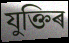
যুক্তিৰ